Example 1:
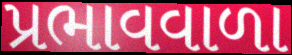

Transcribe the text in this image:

પ્રભાવવાળા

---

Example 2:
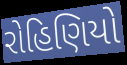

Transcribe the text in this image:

રોહિણિયો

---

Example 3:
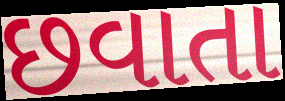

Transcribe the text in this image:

છવાતા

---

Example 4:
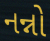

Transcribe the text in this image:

નન્નો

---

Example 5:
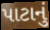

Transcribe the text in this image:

પાટાનું